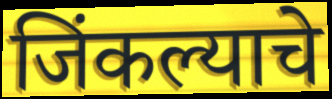
जिंकल्याचे